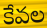
కేవల